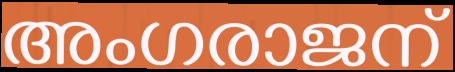
അംഗരാജന്